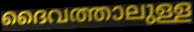
ദൈവത്താലുള്ള